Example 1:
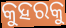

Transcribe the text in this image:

କୁହରକୁ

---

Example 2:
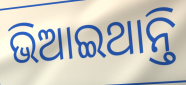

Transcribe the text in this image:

ଭିଆଇଥାନ୍ତି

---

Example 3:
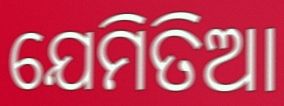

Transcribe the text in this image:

ଯେମିତିଆ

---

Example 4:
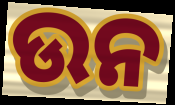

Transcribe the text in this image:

ଉନ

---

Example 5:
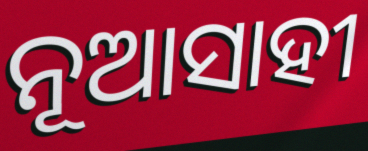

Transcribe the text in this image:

ନୂଆସାହୀ